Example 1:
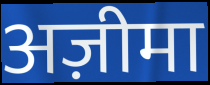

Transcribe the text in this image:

अज़ीमा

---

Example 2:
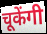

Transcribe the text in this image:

चूकेंगी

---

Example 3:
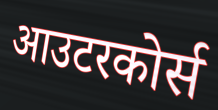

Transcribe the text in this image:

आउटरकोर्स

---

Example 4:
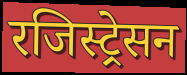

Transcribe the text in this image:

रजिस्ट्रेसन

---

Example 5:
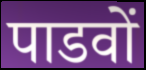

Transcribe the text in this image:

पाडवों